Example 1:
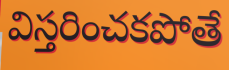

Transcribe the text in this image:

విస్తరించకపోతే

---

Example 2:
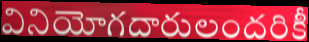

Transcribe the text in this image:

వినియోగదారులందరికీ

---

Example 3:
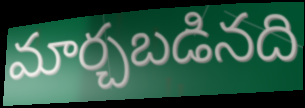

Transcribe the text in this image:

మార్చబడినది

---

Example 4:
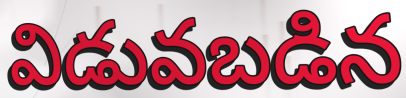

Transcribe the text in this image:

విడువబడిన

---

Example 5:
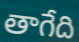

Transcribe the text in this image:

తాగేది